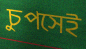
চুপসেই